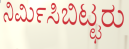
ನಿರ್ಮಿಸಿಬಿಟ್ಟರು